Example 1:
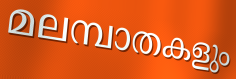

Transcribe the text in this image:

മലമ്പാതകളും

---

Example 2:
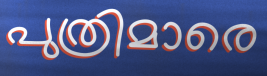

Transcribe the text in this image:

പുത്രിമാരെ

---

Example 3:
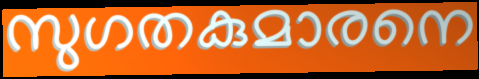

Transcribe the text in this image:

സുഗതകുമാരനെ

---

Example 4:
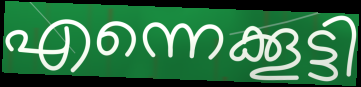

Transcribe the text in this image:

എന്നെക്കൂട്ടി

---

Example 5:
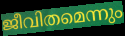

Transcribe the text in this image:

ജീവിതമെന്നും